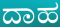
ದಾಹ